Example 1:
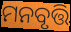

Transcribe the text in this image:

ମନବୃତ୍ତି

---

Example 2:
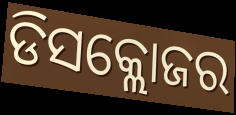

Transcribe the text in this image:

ଡିସକ୍ଲୋଜର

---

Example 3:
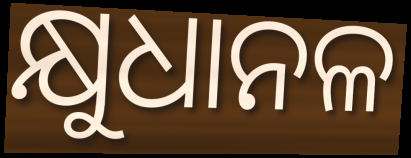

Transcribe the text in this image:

କ୍ଷୁଧାନଳ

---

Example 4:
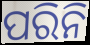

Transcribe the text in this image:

ପରିନି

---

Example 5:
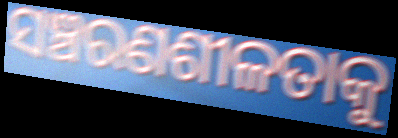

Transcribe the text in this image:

ସଞ୍ଚରଣଶୀଳତାକୁ